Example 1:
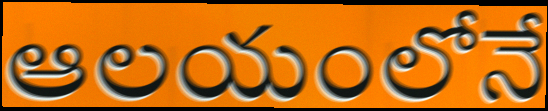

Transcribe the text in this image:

ఆలయంలోనే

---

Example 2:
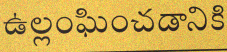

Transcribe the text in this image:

ఉల్లంఘించడానికి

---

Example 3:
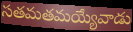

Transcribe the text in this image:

సతమతమయ్యేవాడు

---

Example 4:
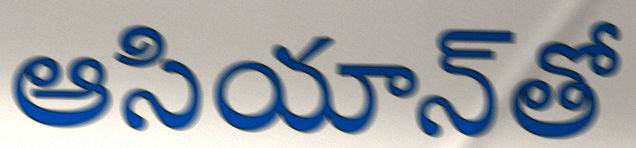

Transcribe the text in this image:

ఆసియాన్‌తో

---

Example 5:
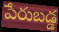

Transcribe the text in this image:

పేరుబడ్డ